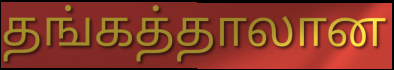
தங்கத்தாலான